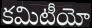
కమిటీయో